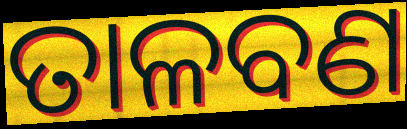
ତାଳବଣ